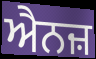
ਐਨਜ਼